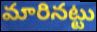
మారినట్టు